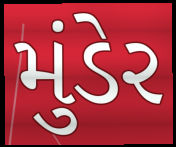
મુંડેર